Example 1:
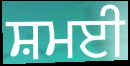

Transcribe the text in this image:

ਸ਼ਮਈ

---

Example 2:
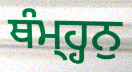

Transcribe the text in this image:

ਥੰਮ੍ਹ੍ਹਨੁ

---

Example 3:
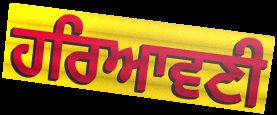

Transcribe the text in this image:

ਹਰਿਆਵਣੀ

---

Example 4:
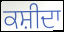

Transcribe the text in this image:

ਕਸ਼ੀਦਾ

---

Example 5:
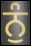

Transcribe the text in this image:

ਨੁੰ